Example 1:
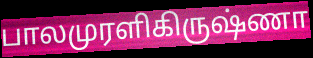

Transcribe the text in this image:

பாலமுரளிகிருஷ்ணா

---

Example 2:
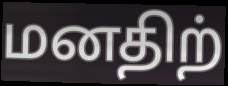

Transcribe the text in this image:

மனதிற்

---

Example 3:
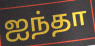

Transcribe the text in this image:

ஐந்தா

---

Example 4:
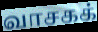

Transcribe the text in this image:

வாசகக்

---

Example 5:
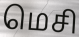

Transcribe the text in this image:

மெசி